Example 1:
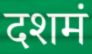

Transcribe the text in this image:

दशमं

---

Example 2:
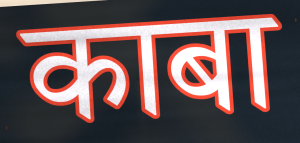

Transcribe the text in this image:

काबा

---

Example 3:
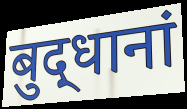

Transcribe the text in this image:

बुद्धानां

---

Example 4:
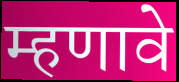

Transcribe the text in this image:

म्हणावे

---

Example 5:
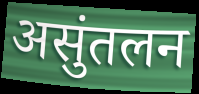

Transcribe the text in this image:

असुंतलन